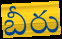
బీరు